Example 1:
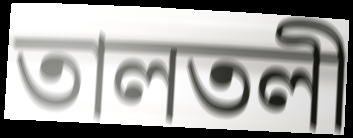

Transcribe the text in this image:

তালতলী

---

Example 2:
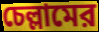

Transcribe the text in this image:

চেল্লামের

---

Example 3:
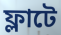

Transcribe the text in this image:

ফ্লাটে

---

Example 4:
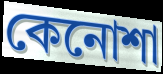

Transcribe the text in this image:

কেনোশা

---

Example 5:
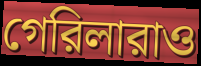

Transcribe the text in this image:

গেরিলারাও